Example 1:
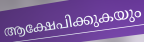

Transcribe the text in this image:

ആക്ഷേപിക്കുകയും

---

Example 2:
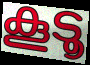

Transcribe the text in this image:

കൂടൂ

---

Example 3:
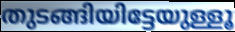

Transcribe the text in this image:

തുടങ്ങിയിട്ടേയുള്ളൂ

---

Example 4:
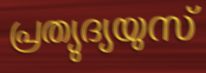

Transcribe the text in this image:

പ്രത്യുദ്യയുസ്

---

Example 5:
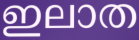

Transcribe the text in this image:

ഇലാത